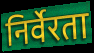
निर्वेरता